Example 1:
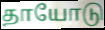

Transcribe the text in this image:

தாயோடு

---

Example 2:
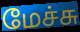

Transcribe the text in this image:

மேச்சு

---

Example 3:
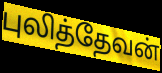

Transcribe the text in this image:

புலித்தேவன்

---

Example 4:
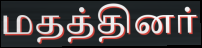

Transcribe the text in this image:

மதத்தினர்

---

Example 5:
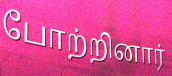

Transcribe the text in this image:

போற்றினார்